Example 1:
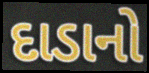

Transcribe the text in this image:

દાડાનો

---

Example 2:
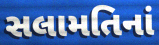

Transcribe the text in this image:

સલામતિનાં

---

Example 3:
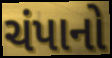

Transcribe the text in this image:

ચંપાનો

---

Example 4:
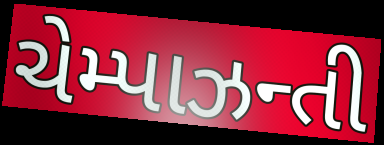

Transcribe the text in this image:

ચેમ્પાઝન્તી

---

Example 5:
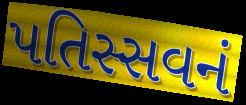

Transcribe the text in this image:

પતિસ્સવનં